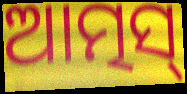
ଆତ୍ମସ୍